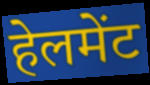
हेलमेंट